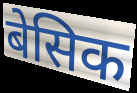
बेसिक